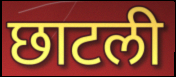
छाटली